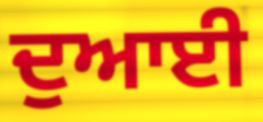
ਦੁਆਈ